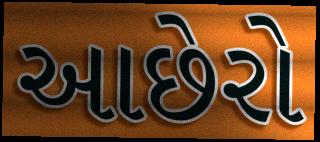
આછેરો